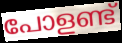
പോളണ്ട്